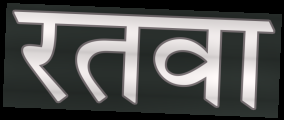
रतवा